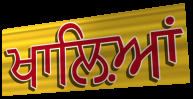
ਖਾਲ਼ਿਆਂ